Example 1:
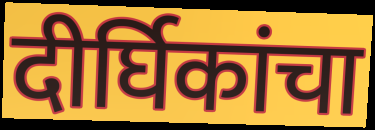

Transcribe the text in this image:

दीर्घिकांचा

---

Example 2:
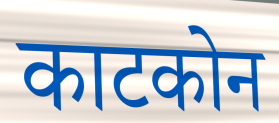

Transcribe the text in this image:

काटकोन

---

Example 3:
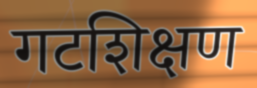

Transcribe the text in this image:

गटशिक्षण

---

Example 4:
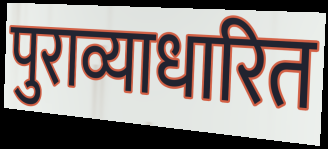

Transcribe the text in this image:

पुराव्याधारित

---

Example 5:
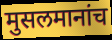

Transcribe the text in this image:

मुसलमानांच